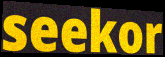
seekor